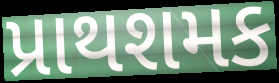
પ્રાથશમક